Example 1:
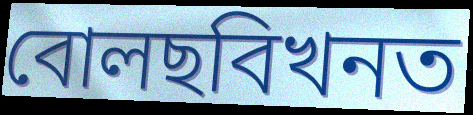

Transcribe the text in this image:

বোলছবিখনত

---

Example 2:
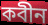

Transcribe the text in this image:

কবীন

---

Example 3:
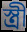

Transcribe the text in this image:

স্ত্ৰী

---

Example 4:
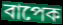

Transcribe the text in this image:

বাপেক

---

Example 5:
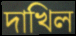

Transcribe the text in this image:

দাখিল